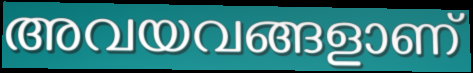
അവയവങ്ങളാണ്